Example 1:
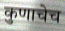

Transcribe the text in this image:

कुणाचेच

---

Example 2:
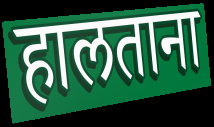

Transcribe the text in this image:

हालताना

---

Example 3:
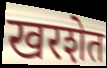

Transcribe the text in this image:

खरशेत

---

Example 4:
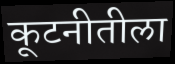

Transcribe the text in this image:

कूटनीतीला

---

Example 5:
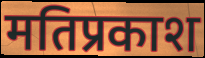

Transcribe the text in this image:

मतिप्रकाश